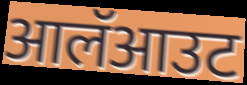
आलॅआउट